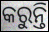
କରୁନ୍ତି